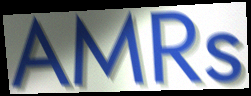
AMRs